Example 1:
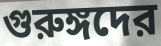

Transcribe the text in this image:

গুরুঙ্গদের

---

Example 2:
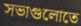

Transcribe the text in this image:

সভাগুলোতে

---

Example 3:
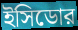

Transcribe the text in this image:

ইসিডোর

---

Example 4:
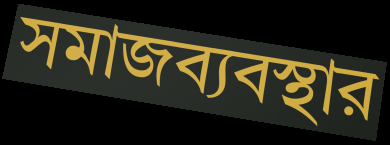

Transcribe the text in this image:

সমাজব্যবস্থার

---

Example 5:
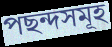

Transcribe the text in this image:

পছন্দসমূহ